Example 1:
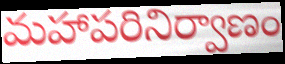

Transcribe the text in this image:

మహాపరినిర్వాణం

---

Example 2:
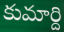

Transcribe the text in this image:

కుమార్ది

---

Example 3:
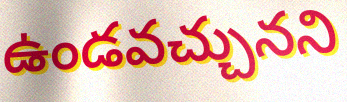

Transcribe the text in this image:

ఉండవచ్చునని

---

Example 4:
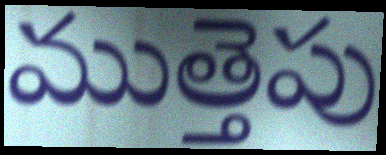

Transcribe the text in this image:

ముత్తెపు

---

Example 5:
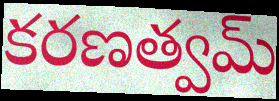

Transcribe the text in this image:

కరణత్వమ్